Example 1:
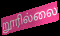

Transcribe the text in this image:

றூரில்லை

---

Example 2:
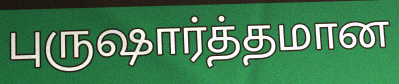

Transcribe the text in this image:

புருஷார்த்தமான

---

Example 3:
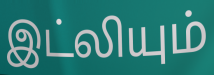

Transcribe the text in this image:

இட்லியும்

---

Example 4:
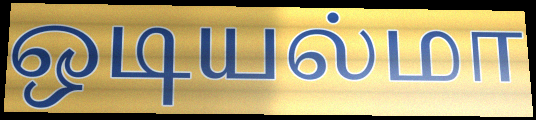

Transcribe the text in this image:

ஒடியல்மா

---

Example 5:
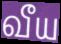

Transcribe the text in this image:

வீய